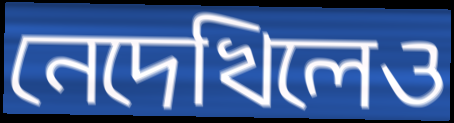
নেদেখিলেও